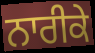
ਨਾਰੀਕੇ